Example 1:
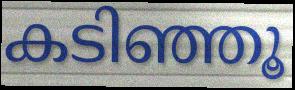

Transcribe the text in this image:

കടിഞ്ഞൂ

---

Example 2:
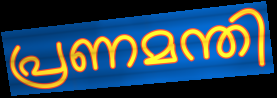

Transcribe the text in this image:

പ്രണമന്തി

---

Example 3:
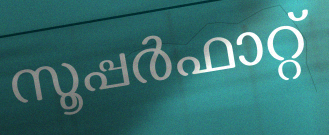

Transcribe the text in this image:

സൂപ്പർഫാറ്റ്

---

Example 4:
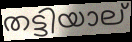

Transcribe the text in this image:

തട്ടിയാല്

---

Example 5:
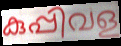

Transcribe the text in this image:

കുപ്പിവള